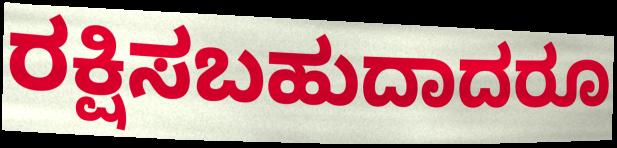
ರಕ್ಷಿಸಬಹುದಾದರೂ